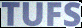
TUFS